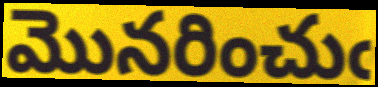
మొనరించుఁ